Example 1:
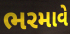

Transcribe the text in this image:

ભરમાવે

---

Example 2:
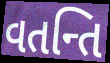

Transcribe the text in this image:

વતન્તિ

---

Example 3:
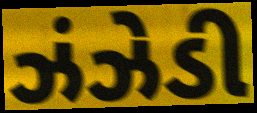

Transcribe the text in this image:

ઝંઝેડી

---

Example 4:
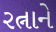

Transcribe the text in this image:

રત્નાને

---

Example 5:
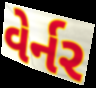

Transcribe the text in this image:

વેર્નર